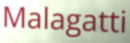
Malagatti